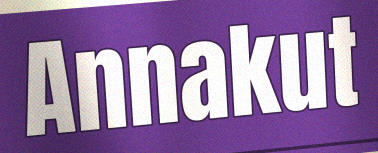
Annakut